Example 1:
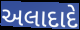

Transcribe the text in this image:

અલાદાદે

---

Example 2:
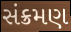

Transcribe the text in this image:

સંક્રમણ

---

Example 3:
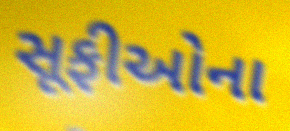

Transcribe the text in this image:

સૂફીઓના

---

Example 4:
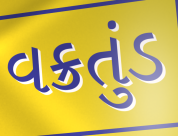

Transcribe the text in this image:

વક્રતુંડ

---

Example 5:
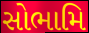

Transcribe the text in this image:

સોભામિ